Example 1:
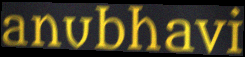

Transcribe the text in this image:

anubhavi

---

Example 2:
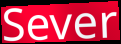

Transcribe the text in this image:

Sever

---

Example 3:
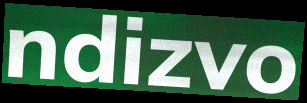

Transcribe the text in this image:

ndizvo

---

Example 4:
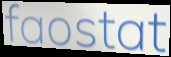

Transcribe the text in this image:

faostat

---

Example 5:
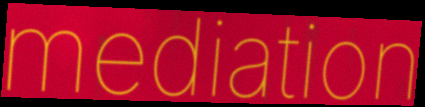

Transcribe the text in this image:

mediation